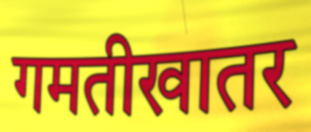
गमतीखातर